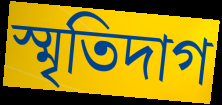
স্মৃতিদাগ